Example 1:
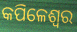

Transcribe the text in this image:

କପିଳେଶ୍ଵର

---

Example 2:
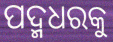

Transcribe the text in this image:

ପଦ୍ମଧରକୁ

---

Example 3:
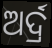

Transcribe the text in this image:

ଅର୍ଦ୍ର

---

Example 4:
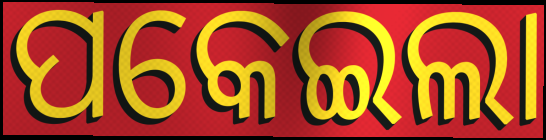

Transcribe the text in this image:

ପକେଇଲା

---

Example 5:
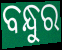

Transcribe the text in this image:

ବନ୍ଧୁର